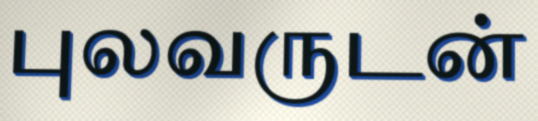
புலவருடன்